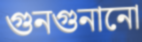
গুনগুনানো